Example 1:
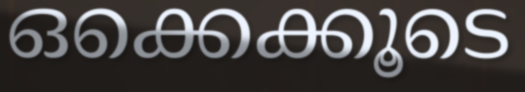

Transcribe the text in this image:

ഒക്കെക്കൂടെ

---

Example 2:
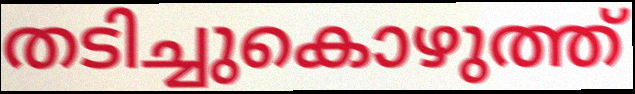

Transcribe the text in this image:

തടിച്ചുകൊഴുത്ത്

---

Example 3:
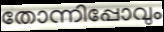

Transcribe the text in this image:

തോന്നിപ്പോവും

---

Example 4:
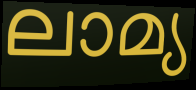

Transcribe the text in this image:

ലാമ്യ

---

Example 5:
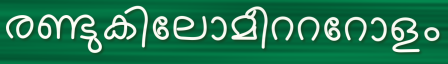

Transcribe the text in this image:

രണ്ടുകിലോമീറററോളം